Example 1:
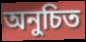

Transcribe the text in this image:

অনুচিত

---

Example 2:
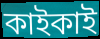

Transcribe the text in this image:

কাইকাই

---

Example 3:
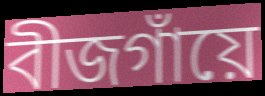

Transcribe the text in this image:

বীজগাঁয়ে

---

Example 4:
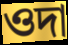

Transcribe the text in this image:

ওদা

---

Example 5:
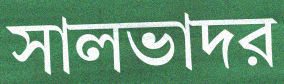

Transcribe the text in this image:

সালভাদর